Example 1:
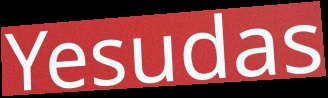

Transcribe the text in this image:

Yesudas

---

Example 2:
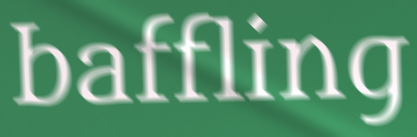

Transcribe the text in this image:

baffling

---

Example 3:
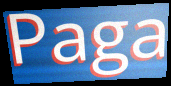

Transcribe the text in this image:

Paga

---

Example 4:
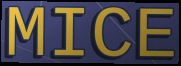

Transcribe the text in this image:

MICE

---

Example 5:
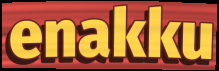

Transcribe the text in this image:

enakku